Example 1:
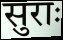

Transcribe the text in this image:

सुराः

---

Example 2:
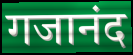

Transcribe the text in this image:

गजानंद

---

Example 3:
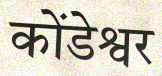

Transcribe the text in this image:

कोंडेश्वर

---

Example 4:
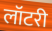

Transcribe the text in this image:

लॉटरी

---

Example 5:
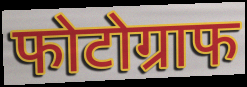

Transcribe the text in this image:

फोटोग्राफ